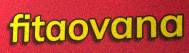
fitaovana